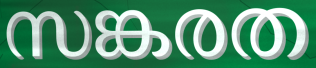
സങ്കരത